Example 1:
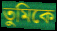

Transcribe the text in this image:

তুমিকে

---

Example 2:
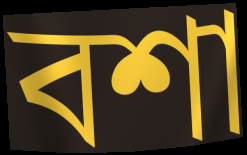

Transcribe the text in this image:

বশা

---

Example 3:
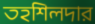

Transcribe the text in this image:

তহশিলদার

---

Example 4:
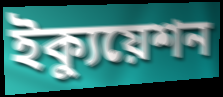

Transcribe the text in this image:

ইক্যুয়েশন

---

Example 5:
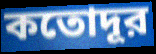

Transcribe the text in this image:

কতোদূর